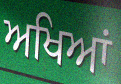
ਅਖਿਆਂ